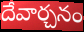
దేవార్చనం